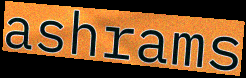
ashrams